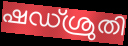
ഷഡ്ശ്രുതി